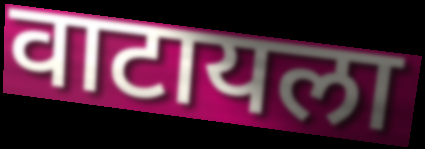
वाटायला